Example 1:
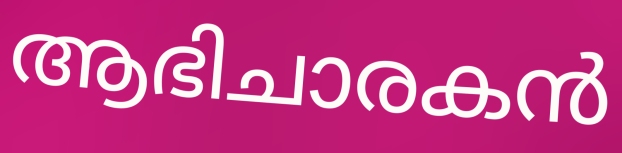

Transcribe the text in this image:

ആഭിചാരകൻ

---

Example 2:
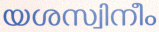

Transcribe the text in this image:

യശസ്വിനീം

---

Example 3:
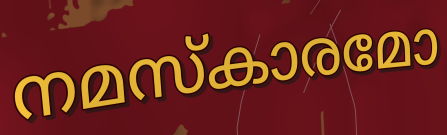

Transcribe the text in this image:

നമസ്കാരമോ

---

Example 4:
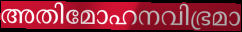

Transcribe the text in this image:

അതിമോഹനവിഭ്രമാ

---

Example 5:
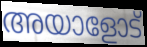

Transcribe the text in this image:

അയാളോട്